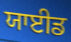
ਯਾਈਡ